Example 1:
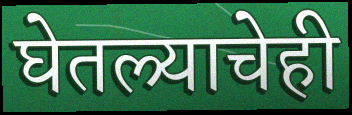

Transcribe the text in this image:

घेतल्याचेही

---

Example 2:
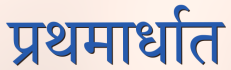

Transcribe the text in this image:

प्रथमार्धात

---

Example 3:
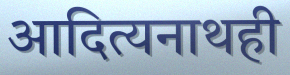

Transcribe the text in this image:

आदित्यनाथही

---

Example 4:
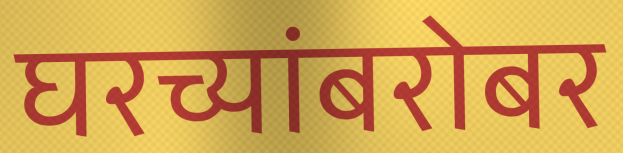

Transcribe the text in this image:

घरच्यांबरोबर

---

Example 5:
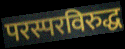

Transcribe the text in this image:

परस्परविरुद्ध